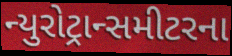
ન્યુરોટ્રાન્સમીટરના